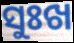
ସୁଃଖ